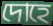
দোহে